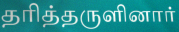
தரித்தருளினார்